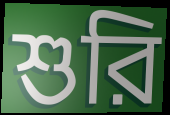
শুরি